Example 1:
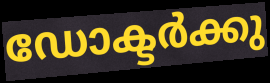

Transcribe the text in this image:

ഡോക്ടർക്കു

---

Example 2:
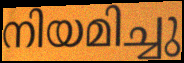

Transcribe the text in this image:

നിയമിച്ചു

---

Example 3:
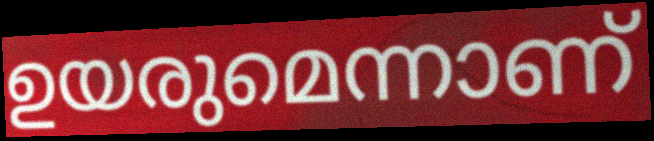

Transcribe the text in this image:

ഉയരുമെന്നാണ്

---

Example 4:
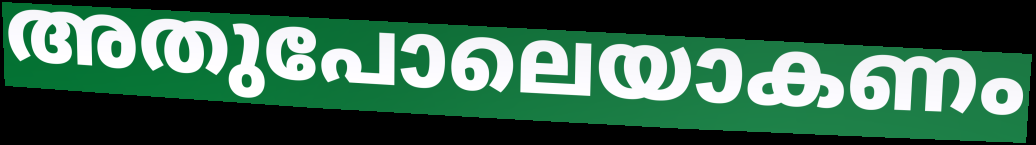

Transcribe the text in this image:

അതുപോലെയാകണം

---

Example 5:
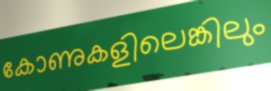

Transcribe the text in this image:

കോണുകളിലെങ്കിലും